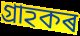
গ্ৰাহকৰ